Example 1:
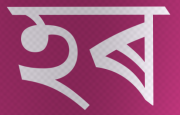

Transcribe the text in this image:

হৰ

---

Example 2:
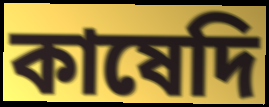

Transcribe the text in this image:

কাষেদি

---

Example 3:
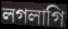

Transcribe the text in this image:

লগলাগি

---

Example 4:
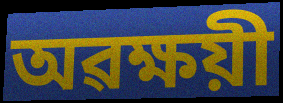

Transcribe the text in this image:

অৱক্ষয়ী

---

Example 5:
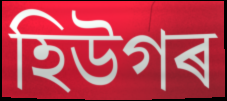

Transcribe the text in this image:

হিউগৰ